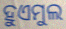
ହୁଏମୁଲ